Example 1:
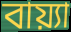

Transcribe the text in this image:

বায়্যা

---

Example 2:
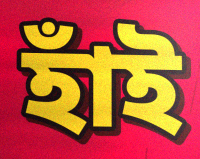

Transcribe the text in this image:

হাঁই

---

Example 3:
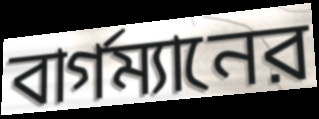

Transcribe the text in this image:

বার্গম্যানের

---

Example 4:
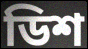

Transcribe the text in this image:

ডিশ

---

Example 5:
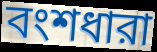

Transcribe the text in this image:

বংশধারা